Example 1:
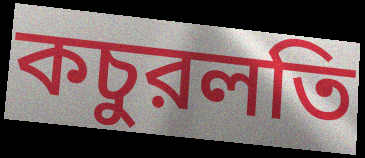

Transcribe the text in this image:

কচুরলতি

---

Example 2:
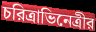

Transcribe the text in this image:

চরিত্রাভিনেত্রীর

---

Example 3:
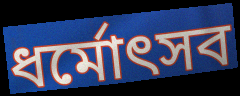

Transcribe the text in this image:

ধর্মোৎসব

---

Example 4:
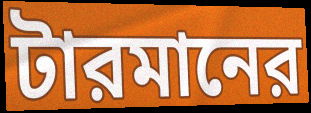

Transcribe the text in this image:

টারমানের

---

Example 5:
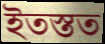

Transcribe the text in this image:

ইতস্তত